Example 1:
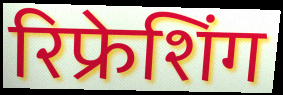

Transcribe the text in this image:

रिफ्रेशिंग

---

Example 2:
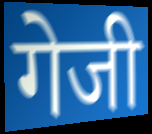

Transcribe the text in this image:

गेजी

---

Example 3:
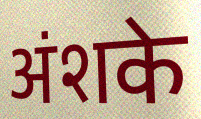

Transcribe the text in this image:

अंशके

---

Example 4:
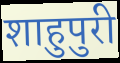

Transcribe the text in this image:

शाहुपुरी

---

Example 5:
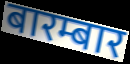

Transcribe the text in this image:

बारम्‍बार